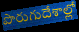
పొరుగుదేశాల్లో